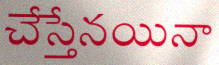
చేస్తేనయినా